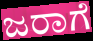
ಜರಾಗೆ